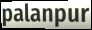
palanpur